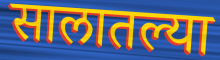
सालातल्या